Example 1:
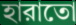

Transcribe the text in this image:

হারাতো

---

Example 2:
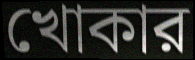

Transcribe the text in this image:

খোকার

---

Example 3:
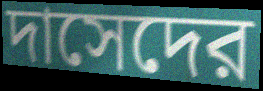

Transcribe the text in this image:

দাসেদের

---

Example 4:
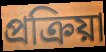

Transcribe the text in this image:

প্রক্রিয়া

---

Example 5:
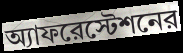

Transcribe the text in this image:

অ্যাফরেস্টেশনের